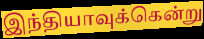
இந்தியாவுக்கென்று